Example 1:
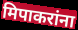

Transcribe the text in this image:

मिपाकरांना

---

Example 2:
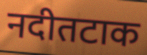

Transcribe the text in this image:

नदीतटाक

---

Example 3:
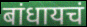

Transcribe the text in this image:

बांधायचं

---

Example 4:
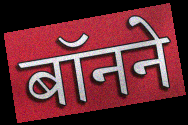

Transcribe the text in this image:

बॉनने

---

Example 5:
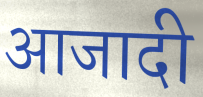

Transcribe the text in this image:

आजादी